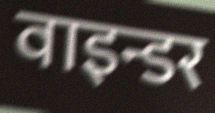
वाइन्डर